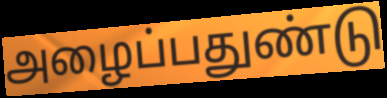
அழைப்பதுண்டு